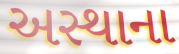
અસ્થાના